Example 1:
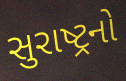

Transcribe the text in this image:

સુરાષ્ટ્રનો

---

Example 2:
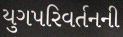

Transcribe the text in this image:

યુગપરિવર્તનની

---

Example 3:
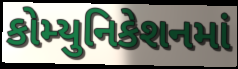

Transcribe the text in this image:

કોમ્યુનિકેશનમાં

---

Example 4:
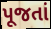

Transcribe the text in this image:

પૂજતાં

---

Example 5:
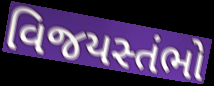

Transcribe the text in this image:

વિજયસ્તંભો